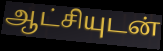
ஆட்சியுடன்